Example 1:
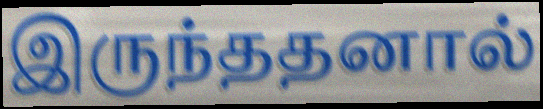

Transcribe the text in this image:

இருந்ததனால்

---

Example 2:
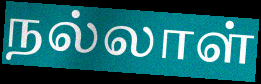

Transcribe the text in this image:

நல்லாள்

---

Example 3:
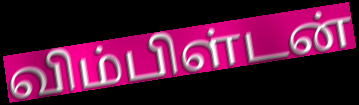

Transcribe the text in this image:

விம்பிள்டன்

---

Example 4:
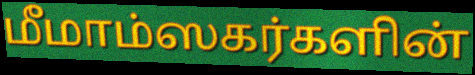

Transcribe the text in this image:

மீமாம்ஸகர்களின்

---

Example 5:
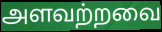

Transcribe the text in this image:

அளவற்றவை